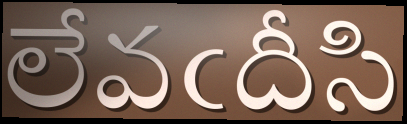
లేవఁదీసి